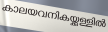
കാലയവനികയ്ക്കുള്ളിൽ